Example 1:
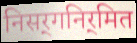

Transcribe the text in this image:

निसर्गनिर्मित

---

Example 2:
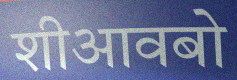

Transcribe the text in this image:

शीआवबो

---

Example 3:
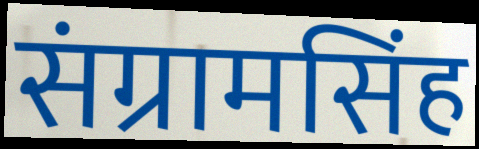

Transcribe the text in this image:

संग्रामसिंह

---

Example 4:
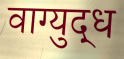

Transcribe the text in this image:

वाग्युद्ध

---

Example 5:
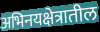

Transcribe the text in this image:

अभिनयक्षेत्रातील